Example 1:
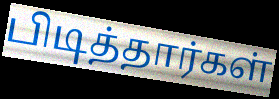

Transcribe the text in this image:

பிடித்தார்கள்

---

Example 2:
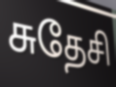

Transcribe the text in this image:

சுதேசி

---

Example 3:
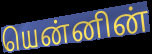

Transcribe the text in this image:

யென்னின்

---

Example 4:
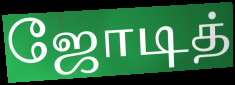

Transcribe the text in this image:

ஜோடித்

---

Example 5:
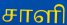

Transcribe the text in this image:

சாளி